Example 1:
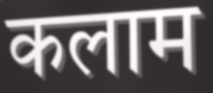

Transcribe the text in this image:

कलाम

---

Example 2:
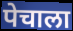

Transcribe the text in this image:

पेचाला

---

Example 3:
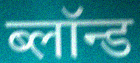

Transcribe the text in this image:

ब्लॉन्ड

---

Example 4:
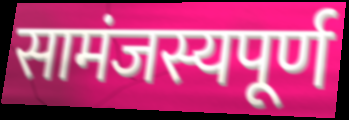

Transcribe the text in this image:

सामंजस्यपूर्ण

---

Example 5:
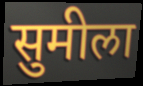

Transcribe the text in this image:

सुमीला